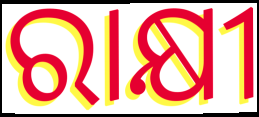
ରାକ୍ଷୀ